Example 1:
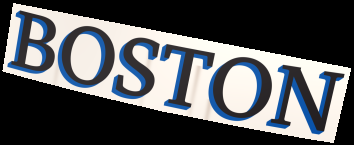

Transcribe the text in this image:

BOSTON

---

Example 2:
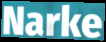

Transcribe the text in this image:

Narke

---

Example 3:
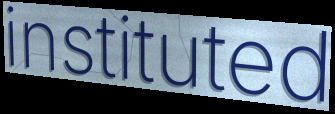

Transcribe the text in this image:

instituted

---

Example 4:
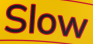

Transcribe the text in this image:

Slow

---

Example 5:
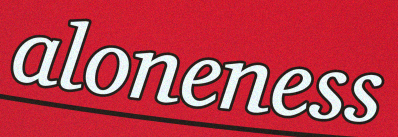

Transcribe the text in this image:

aloneness